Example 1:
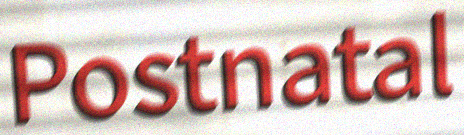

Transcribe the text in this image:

Postnatal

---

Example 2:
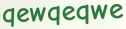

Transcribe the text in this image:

qewqeqwe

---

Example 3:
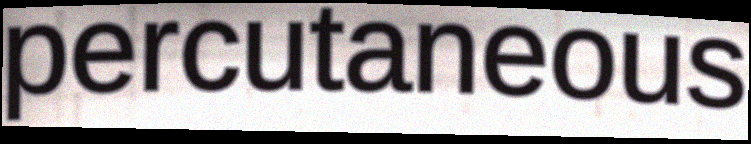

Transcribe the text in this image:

percutaneous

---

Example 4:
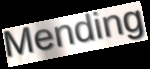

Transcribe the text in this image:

Mending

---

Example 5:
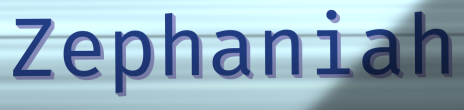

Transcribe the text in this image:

Zephaniah